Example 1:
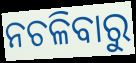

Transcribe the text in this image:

ନଚଳିବାରୁ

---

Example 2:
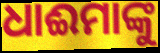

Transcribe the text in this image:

ଧାଈମାଙ୍କୁ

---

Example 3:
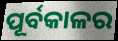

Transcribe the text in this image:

ପୂର୍ବକାଳର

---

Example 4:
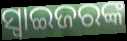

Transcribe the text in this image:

ସ୍ଵାଇଜରଙ୍କ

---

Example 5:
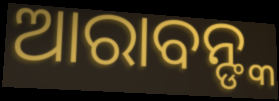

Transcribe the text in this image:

ଆରାବନ୍ଙ୍କ